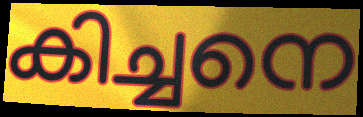
കിച്ചനെ